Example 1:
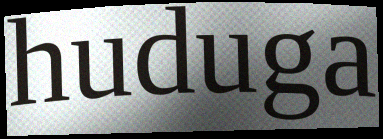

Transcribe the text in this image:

huduga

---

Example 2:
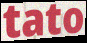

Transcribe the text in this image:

tato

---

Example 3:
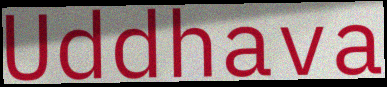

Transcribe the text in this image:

Uddhava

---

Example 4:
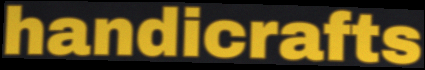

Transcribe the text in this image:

handicrafts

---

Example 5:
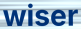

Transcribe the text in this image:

wiser